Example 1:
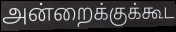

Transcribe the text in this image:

அன்றைக்குக்கூட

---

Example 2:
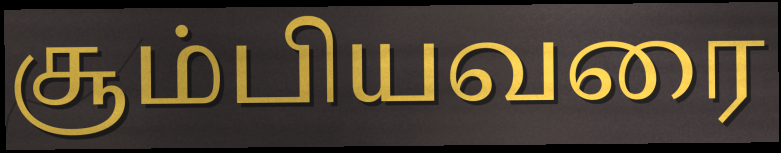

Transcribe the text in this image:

சூம்பியவரை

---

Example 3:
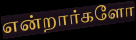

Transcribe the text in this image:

என்றார்களோ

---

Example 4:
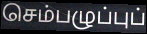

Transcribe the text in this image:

செம்பழுப்புப்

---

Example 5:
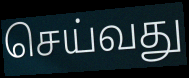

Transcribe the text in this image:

செய்வது